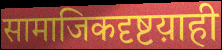
सामाजिकदृष्टय़ाही